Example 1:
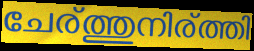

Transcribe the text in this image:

ചേര്ത്തുനിര്ത്തി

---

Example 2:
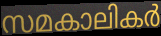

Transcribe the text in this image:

സമകാലികർ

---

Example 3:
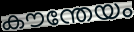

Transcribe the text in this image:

കൗന്തേയം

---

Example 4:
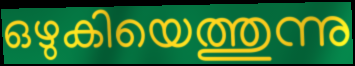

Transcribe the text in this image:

ഒഴുകിയെത്തുന്നു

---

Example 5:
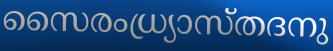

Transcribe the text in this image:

സൈരംധ്ര്യാസ്തദനു